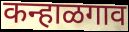
कन्हाळगाव